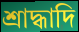
শ্রাদ্ধাদি